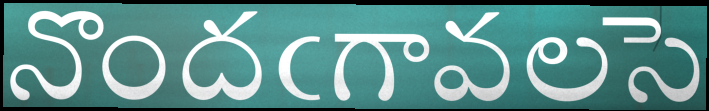
నొందఁగావలసె